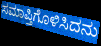
ಸಮಾಪ್ತಿಗೊಳಿಸಿದನು